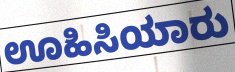
ಊಹಿಸಿಯಾರು